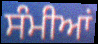
ਸੰਮੀਆਂ